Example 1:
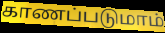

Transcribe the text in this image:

காணப்படுமாம்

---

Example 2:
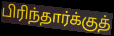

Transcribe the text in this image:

பிரிந்தார்க்குத்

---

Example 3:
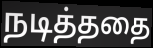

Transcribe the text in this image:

நடித்ததை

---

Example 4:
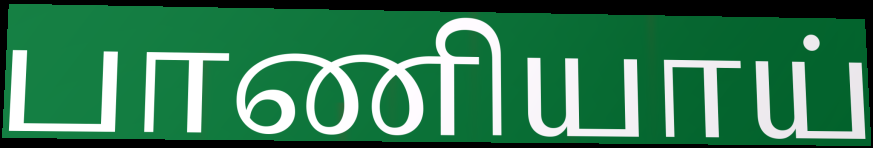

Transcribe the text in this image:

பாணியாய்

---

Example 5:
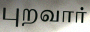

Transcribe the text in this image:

புறவார்